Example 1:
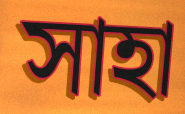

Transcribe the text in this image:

সাহা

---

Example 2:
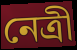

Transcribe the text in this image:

নেত্ৰী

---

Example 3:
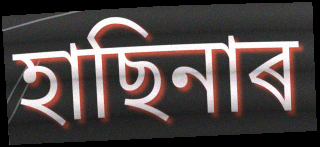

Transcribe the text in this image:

হাছিনাৰ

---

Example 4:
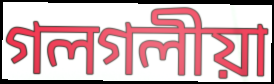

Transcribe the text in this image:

গলগলীয়া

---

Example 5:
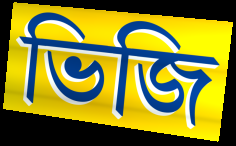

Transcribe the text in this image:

ভিজি